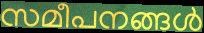
സമീപനങ്ങൾ